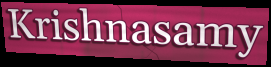
Krishnasamy